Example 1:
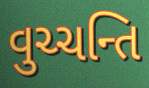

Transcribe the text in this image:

વુચ્ચન્તિ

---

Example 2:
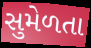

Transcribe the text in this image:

સુમેળતા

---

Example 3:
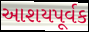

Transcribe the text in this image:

આશયપૂર્વક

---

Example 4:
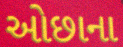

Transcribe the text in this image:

ઓછાના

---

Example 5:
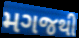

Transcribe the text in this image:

મગજથી